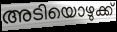
അടിയൊഴുക്ക്